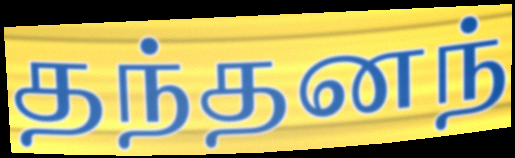
தந்தனந்